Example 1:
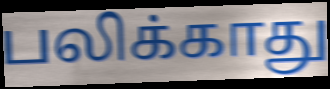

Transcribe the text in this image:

பலிக்காது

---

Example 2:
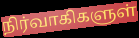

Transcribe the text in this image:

நிர்வாகிகளுள்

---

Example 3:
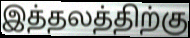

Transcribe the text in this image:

இத்தலத்திற்கு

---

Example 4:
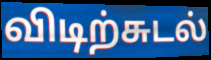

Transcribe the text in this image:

விடிற்சுடல்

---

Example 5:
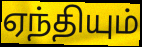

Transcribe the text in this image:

ஏந்தியும்